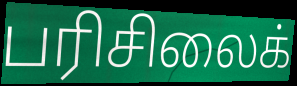
பரிசிலைக்